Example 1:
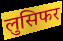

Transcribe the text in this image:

लुसिफर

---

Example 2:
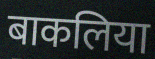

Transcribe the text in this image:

बाकलिया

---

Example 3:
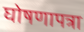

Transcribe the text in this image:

घोषणापत्रा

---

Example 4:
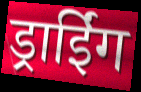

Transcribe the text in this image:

ड्राईिंग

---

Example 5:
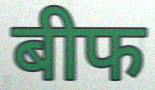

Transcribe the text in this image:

बीफ